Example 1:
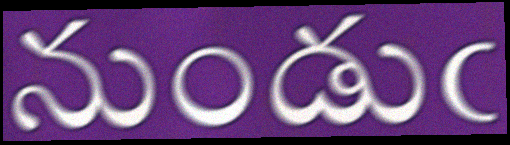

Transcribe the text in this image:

నుండుఁ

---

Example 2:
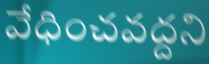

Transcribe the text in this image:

వేధించవద్దని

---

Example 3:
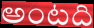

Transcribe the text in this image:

అంటది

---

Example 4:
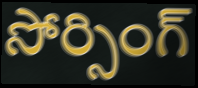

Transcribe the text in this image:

సోర్సింగ్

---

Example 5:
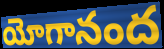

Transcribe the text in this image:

యోగానంద